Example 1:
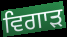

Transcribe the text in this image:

ਵਿਗਾਡ਼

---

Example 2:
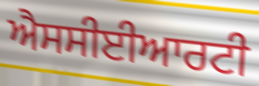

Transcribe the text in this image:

ਐਸਸੀਈਆਰਟੀ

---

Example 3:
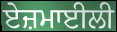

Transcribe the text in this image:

ਏਜ਼ਮਾਈਲੀ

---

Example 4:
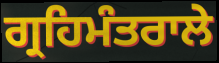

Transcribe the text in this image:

ਗ੍ਰਹਿਮੰਤਰਾਲੇ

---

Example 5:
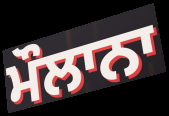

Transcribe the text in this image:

ਮੌਲਾਨਾ